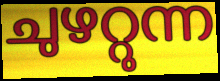
ചുഴറ്റുന്ന